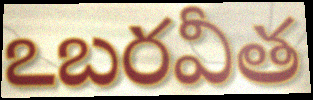
ఽబరవీత